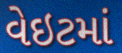
વેઇટમાં